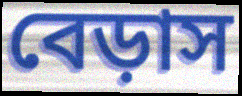
বেড়াস